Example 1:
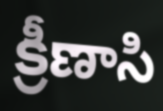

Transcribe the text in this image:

క్రీణాసి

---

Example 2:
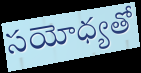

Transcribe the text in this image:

సయోధ్యతో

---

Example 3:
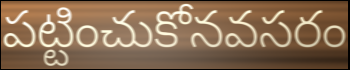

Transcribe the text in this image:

పట్టించుకోనవసరం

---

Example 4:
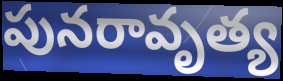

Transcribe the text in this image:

పునరావృత్య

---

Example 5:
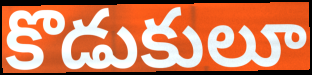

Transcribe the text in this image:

కొడుకులూ